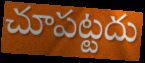
చూపట్టదు